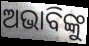
ଅଭାବିଙ୍କୁ